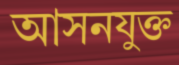
আসনযুক্ত